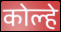
कोल्हे